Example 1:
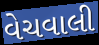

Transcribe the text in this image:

વેચવાલી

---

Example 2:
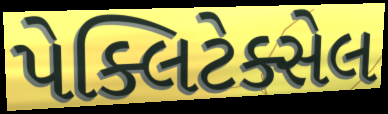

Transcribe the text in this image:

પેક્લિટેક્સેલ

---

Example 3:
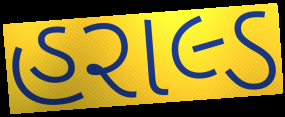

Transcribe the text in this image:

હરાલ્ડ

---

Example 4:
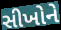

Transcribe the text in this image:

સીખોને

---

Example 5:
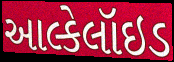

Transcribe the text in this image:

આલ્કેલૉઇડ